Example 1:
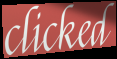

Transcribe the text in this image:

clicked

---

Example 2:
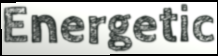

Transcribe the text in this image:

Energetic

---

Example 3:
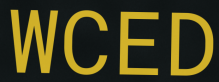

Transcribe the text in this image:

WCED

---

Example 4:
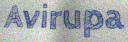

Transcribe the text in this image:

Avirupa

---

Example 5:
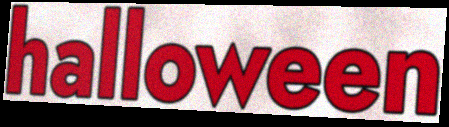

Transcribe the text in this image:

halloween